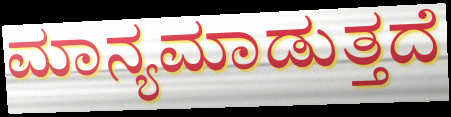
ಮಾನ್ಯಮಾಡುತ್ತದೆ